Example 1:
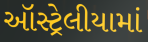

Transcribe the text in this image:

ઑસ્ટ્રેલીયામાં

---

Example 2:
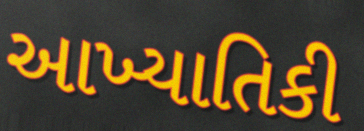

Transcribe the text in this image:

આખ્યાતિકી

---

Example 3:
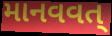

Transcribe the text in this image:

માનવવત્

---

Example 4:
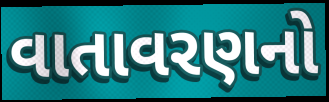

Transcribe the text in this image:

વાતાવરણનો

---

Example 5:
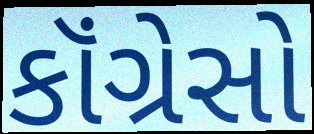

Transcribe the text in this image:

કૉંગ્રેસો